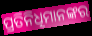
ପ୍ରତିନିଧିମାନଙ୍କର